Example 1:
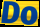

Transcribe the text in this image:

Do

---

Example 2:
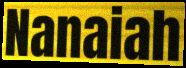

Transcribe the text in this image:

Nanaiah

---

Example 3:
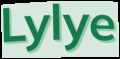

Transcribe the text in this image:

Lylye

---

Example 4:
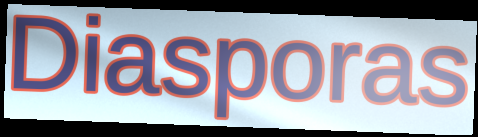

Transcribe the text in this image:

Diasporas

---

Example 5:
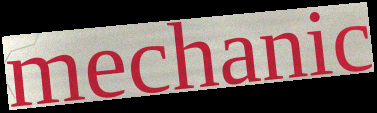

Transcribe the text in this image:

mechanic